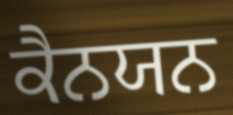
ਕੈਨਯਨ